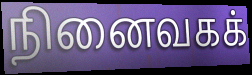
நினைவகக்